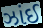
ઝાંઈ